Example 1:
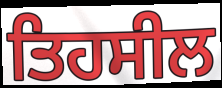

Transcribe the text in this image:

ਤਿਹਸੀਲ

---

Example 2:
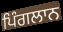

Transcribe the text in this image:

ਪਿੰਗਲਾਨ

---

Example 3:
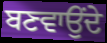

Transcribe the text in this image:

ਬਣਵਾਉਂਦੇ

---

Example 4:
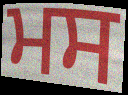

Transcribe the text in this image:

ਮਸ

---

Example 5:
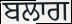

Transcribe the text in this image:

ਬਲਾਗ